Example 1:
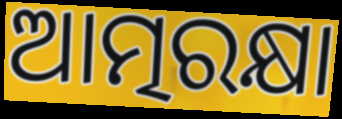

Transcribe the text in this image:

ଆତ୍ମରକ୍ଷା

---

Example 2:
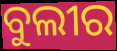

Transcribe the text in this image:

ବୁଲୀର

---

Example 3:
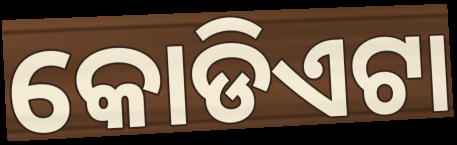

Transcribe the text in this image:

କୋଡିଏଟା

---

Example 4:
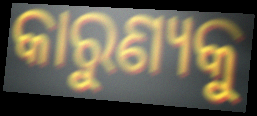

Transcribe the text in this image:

କାରୁଣ୍ୟକୁ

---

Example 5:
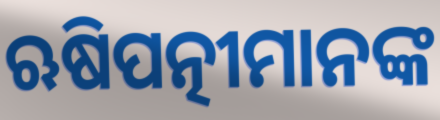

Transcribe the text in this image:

ଋଷିପତ୍ନୀମାନଙ୍କ